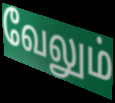
வேலும்